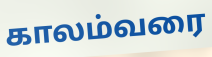
காலம்வரை